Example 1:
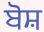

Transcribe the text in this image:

ਬੋਸ਼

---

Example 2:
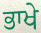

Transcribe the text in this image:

ਭਾਖੇ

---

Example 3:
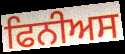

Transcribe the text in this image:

ਫਿਨੀਅਸ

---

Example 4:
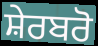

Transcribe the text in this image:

ਸ਼ੇਰਬਰੋ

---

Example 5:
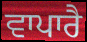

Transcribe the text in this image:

ਵਾਪਾਰੈ